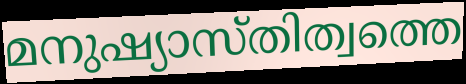
മനുഷ്യാസ്തിത്വത്തെ